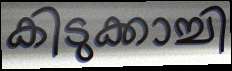
കിടുക്കാച്ചി